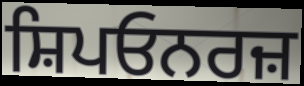
ਸ਼ਿਪਓਨਰਜ਼